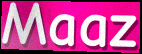
Maaz